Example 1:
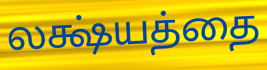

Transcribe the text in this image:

லக்ஷ்யத்தை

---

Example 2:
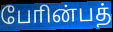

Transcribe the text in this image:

பேரின்பத்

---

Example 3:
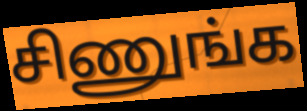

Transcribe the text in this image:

சிணுங்க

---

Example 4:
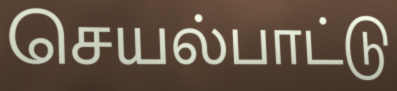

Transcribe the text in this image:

செயல்பாட்டு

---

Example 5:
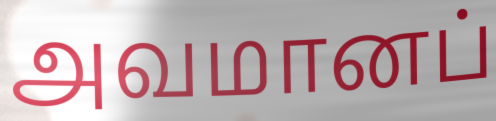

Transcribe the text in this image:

அவமானப்